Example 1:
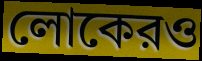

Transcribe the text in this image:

লোকেরও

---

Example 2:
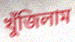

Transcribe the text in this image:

খুঁজিলাম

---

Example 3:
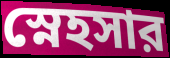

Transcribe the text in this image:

স্নেহসার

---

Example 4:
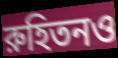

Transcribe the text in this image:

রুহিতনও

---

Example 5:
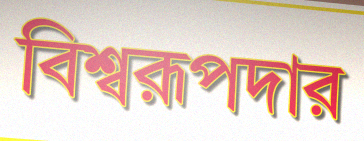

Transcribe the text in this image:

বিশ্বরূপদার